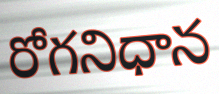
రోగనిధాన